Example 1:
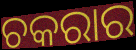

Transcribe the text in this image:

ଚକରାର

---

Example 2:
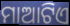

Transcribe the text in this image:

ମାଆଟିଏ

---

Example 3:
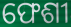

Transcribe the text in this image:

ଫେଶୀ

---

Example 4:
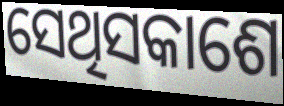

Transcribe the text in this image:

ସେଥିସକାଶେ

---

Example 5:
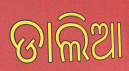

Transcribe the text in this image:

ଡାଲିଆ